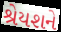
શ્રેયશને